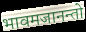
भावमजानन्तो